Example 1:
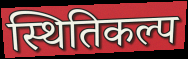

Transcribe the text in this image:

स्थितिकल्प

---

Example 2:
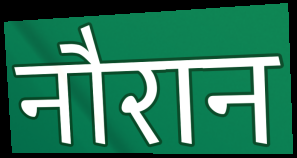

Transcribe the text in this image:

नौरान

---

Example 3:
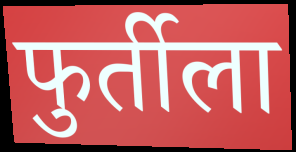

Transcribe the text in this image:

फुर्तीला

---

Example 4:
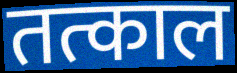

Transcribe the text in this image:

तत्‍काल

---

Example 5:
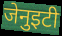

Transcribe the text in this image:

जेनुइटी